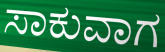
ಸಾಕುವಾಗ